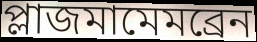
প্লাজমামেমব্রেন